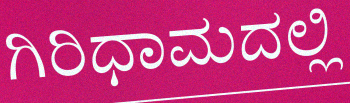
ಗಿರಿಧಾಮದಲ್ಲಿ